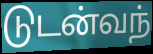
டுடன்வந்